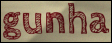
gunha